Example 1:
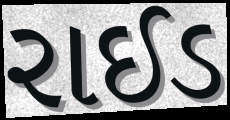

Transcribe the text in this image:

રાઈડ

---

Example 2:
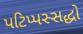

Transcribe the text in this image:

પટિપ્પસ્સદ્ધો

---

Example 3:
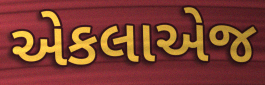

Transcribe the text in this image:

એકલાએજ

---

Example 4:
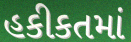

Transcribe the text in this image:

હકીકતમાં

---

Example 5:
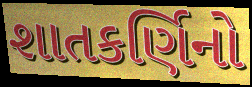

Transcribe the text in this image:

શાતકર્ણિનો